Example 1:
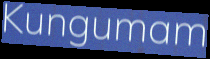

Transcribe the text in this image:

Kungumam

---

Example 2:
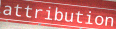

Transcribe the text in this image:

attribution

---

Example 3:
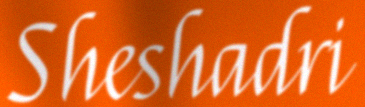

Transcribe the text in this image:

Sheshadri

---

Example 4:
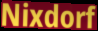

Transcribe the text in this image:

Nixdorf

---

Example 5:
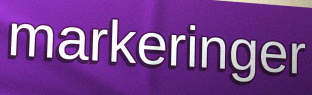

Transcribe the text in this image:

markeringer